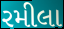
રમીલા